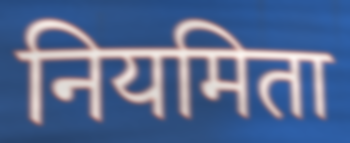
नियमिता